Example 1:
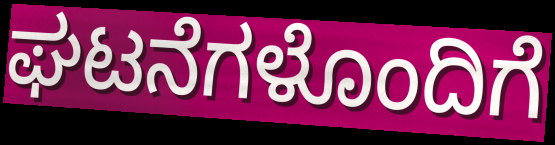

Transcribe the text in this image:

ಘಟನೆಗಳೊಂದಿಗೆ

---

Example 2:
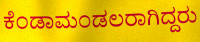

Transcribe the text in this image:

ಕೆಂಡಾಮಂಡಲರಾಗಿದ್ದರು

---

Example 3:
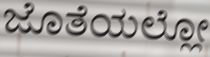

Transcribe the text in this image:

ಜೊತೆಯಲ್ಲೋ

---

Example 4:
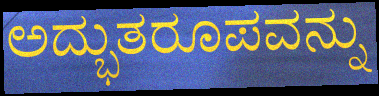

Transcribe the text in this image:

ಅದ್ಭುತರೂಪವನ್ನು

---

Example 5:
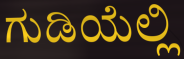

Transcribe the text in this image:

ಗುಡಿಯೆಲ್ಲಿ